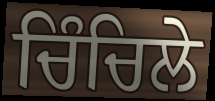
ਚਿੰਚਿਲੇ